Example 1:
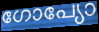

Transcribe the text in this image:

ഗോപ്യോ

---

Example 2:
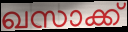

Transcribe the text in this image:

ഖസാക്ക്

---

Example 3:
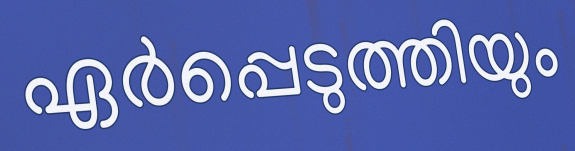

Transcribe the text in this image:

ഏർപ്പെടുത്തിയും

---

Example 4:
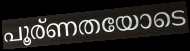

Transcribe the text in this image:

പൂര്ണതയോടെ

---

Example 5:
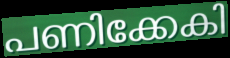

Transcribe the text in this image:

പണിക്കേകി